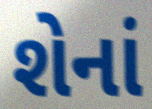
શેનાં